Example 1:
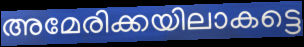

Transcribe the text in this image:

അമേരിക്കയിലാകട്ടെ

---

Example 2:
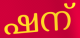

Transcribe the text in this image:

ഷന്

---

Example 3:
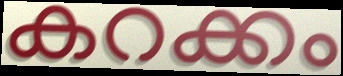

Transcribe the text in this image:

കറക്കം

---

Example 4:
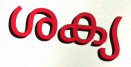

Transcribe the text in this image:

ശക്യ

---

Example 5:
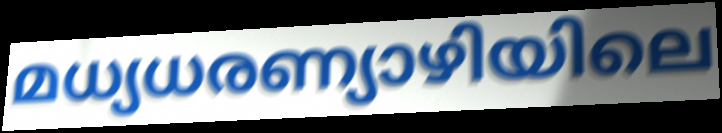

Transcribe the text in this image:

മധ്യധരണ്യാഴിയിലെ